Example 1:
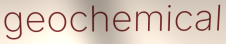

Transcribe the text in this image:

geochemical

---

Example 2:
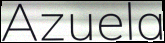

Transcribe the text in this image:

Azuela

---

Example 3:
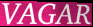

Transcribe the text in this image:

VAGAR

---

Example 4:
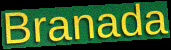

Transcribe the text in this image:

Branada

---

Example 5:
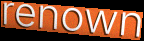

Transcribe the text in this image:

renown